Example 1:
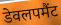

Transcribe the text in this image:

डेवलपमैंट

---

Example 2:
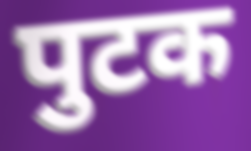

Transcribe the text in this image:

पुटक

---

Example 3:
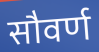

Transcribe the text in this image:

सौवर्ण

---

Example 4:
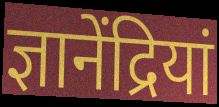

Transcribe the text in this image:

ज्ञानेंद्रियां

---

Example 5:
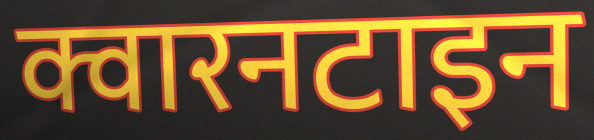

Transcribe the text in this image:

क्वारनटाइन